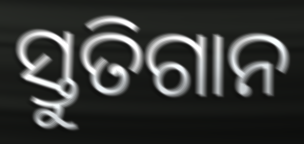
ସ୍ତୁତିଗାନ